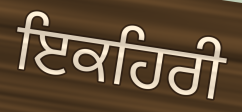
ਇਕਹਿਰੀ